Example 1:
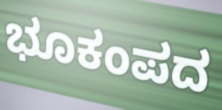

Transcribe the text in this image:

ಭೂಕಂಪದ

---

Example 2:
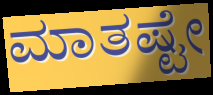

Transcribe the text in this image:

ಮಾತಷ್ಟೇ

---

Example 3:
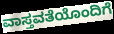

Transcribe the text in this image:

ವಾಸ್ತವತೆಯೊಂದಿಗೆ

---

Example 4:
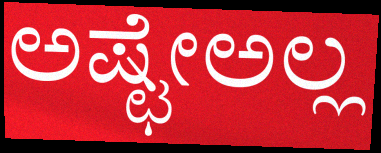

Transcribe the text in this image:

ಅಷ್ಟೇಅಲ್ಲ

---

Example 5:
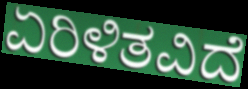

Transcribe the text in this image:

ಏರಿಳಿತವಿದೆ